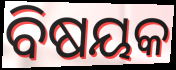
ବିଷୟକ